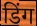
डिंग